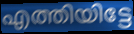
എത്തിയിട്ടേ